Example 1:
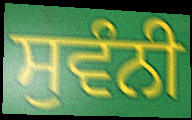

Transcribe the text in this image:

ਸੁਵੰਨੀ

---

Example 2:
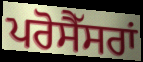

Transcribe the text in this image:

ਪਰੋਸੈੱਸਰਾਂ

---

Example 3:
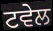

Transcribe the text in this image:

ਟਵੇਲ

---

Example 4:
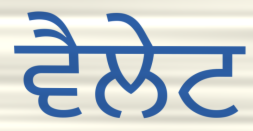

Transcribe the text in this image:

ਵੈਲੇਟ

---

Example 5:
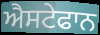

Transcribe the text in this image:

ਐਸਟੇਫਾਨ